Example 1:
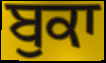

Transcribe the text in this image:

ਬੁਕਾ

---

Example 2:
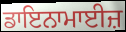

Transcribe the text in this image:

ਡਾਇਨਾਮਾਈਜ਼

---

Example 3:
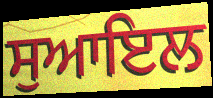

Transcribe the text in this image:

ਸੁਆਇਲ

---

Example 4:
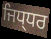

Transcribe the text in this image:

ਜਿਧ੍ਧਰ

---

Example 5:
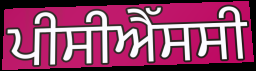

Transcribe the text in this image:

ਪੀਸੀਐੱਸਸੀ